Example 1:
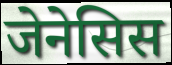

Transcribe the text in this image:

जेनेसिस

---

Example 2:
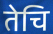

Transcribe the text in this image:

तेचि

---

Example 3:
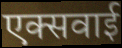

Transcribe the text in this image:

एक्सवाई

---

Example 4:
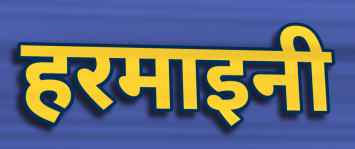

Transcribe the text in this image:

हरमाइनी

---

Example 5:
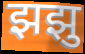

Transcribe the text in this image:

झझु